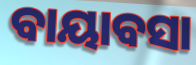
ବାୟାବସା